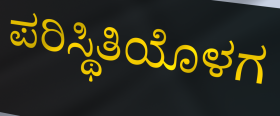
ಪರಿಸ್ಥಿತಿಯೊಳಗ